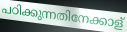
പഠിക്കുന്നതിനേക്കാള്